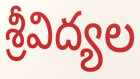
శ్రీవిద్యల